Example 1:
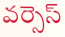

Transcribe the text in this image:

వర్సెస్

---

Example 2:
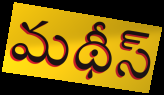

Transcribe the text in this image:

మథీస్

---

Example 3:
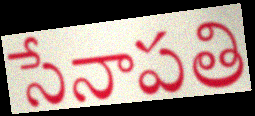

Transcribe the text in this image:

సేనాపతి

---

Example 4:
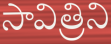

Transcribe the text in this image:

సావిత్రిని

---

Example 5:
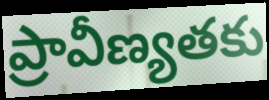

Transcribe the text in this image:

ప్రావీణ్యతకు